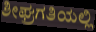
ಶೀಘ್ರಗತಿಯಲ್ಲಿ